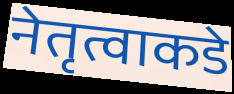
नेतृत्वाकडे